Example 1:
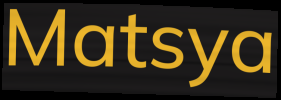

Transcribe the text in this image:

Matsya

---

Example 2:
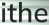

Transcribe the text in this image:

ithe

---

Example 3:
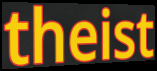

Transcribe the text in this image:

theist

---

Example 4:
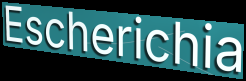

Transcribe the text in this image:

Escherichia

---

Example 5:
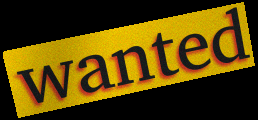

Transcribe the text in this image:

wanted